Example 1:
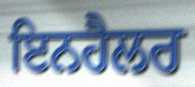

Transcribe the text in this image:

ਇਨਹੈਲਰ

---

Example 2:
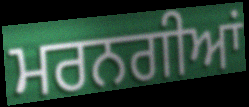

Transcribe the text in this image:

ਮਰਨਗੀਆਂ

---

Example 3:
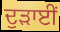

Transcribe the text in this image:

ਦੁੜਾਈਂ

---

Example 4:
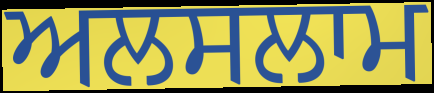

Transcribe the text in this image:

ਅਲਸਲਾਮ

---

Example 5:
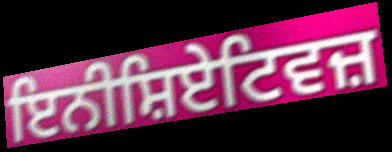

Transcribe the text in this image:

ਇਨੀਸ਼ਿਏਟਿਵਜ਼